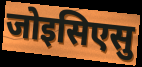
जोइसिएसु